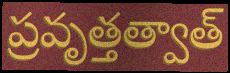
ప్రవృత్తత్వాత్